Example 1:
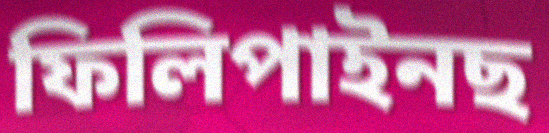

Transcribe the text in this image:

ফিলিপাইনছ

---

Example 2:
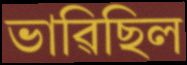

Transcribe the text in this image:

ভাৱিছিল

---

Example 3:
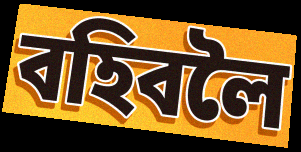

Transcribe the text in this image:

বহিবলৈ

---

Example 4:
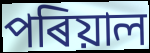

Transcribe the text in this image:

পৰিয়াল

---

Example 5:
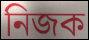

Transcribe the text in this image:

নিজক